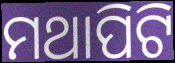
ମଥାପିଟି